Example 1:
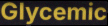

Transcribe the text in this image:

Glycemic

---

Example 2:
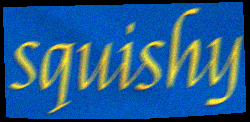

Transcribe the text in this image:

squishy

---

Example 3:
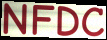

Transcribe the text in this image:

NFDC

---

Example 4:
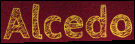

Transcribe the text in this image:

Alcedo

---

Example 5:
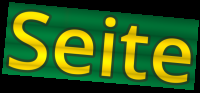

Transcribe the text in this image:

Seite